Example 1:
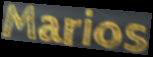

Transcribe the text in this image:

Marios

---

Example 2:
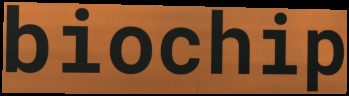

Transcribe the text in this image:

biochip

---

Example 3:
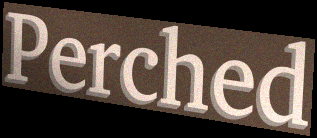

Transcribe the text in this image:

Perched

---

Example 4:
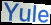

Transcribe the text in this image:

Yule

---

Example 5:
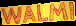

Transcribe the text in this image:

WALMI